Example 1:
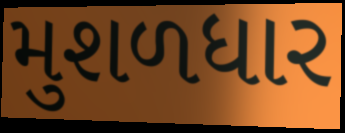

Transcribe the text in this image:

મુશળધાર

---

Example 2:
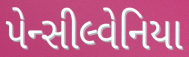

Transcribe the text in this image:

પેન્સીલ્વેનિયા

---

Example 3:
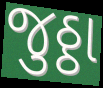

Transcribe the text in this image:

જુઠ્ઠા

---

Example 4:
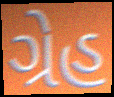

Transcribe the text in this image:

ગ્રેહ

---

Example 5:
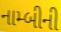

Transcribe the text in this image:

નામ્બીની